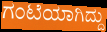
ಗಂಟೆಯಾಗಿದ್ದು